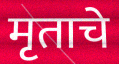
मृताचे